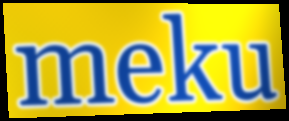
meku